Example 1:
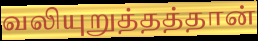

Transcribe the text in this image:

வலியுறுத்தத்தான்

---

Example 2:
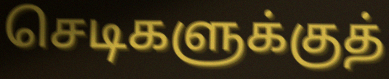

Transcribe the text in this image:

செடிகளுக்குத்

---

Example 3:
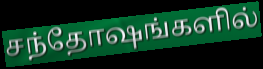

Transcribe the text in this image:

சந்தோஷங்களில்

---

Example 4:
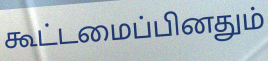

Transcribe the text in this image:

கூட்டமைப்பினதும்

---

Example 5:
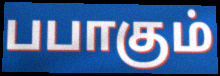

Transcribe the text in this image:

பபாகும்